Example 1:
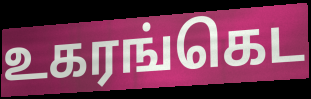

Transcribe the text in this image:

உகரங்கெட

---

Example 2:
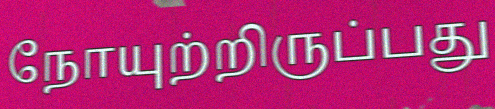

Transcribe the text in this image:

நோயுற்றிருப்பது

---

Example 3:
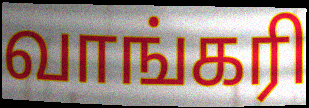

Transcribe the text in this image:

வாங்கரி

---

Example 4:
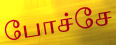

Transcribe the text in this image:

போச்சே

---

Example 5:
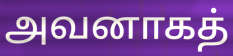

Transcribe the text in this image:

அவனாகத்